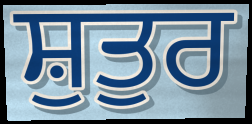
ਸ਼ੁਤੁਰ